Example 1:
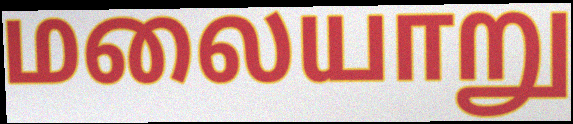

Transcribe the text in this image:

மலையாறு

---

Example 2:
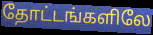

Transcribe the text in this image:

தோட்டங்களிலே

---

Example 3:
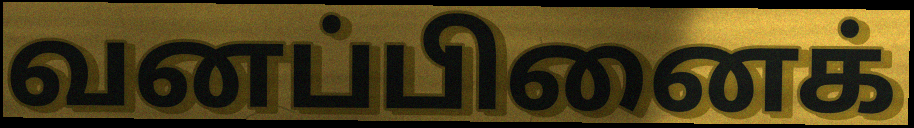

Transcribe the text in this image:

வனப்பினைக்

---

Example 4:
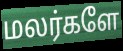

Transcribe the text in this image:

மலர்களே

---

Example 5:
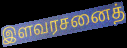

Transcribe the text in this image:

இளவரசனைத்